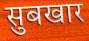
सुबखार